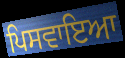
ਪਿਸਵਾਇਆ